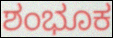
ಶಂಭೂಕ